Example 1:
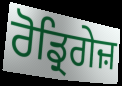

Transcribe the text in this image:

ਰੋਡ੍ਰਿਗੇਜ਼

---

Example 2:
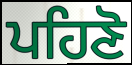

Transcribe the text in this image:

ਪਹਿਣੋ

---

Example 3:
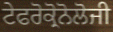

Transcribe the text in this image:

ਟੇਫਰੋਕ੍ਰੋਨੋਲੋਜੀ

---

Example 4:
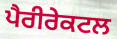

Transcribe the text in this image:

ਪੈਰੀਰੇਕਟਲ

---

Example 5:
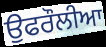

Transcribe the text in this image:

ਉਫਰੌਲੀਆ